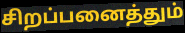
சிறப்பனைத்தும்